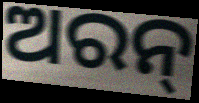
ଅରନ୍